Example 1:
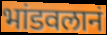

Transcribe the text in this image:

भांडवलानं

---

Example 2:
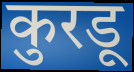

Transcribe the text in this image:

कुरडू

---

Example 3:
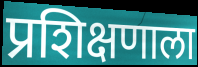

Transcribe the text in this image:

प्रशिक्षणाला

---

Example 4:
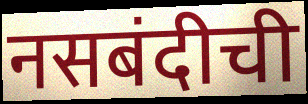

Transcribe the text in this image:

नसबंदीची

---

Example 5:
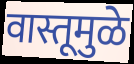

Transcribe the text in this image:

वास्तूमुळे